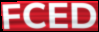
FCED